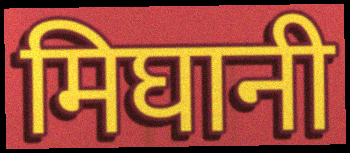
मिघानी